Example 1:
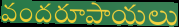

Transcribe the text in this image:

వందరూపాయలు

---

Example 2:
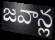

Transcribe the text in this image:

జవాన్ల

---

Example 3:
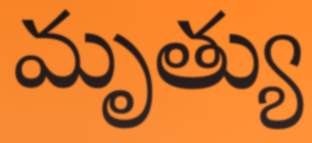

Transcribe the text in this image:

మృత్యు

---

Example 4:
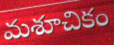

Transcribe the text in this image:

మశూచికం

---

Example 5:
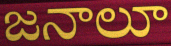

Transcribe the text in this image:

జనాలూ